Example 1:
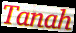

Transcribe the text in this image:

Tanah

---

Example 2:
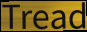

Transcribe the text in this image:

Tread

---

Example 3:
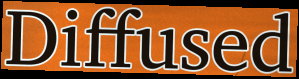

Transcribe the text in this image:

Diffused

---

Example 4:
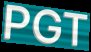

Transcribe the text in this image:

PGT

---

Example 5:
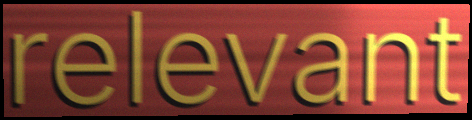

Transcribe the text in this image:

relevant